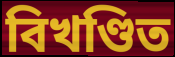
বিখণ্ডিত